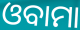
ଓବାମା